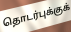
தொடர்புக்குக்